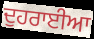
ਦੁਹਰਾਈਆ